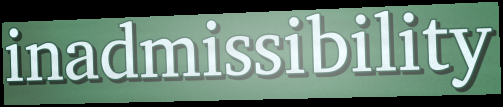
inadmissibility